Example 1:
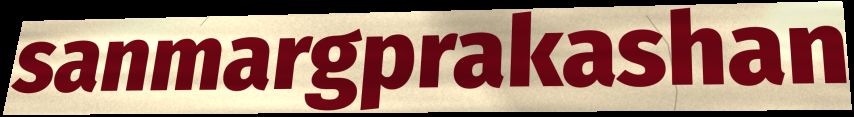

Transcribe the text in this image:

sanmargprakashan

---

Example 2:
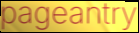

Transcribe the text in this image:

pageantry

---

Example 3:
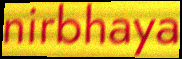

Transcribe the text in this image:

nirbhaya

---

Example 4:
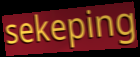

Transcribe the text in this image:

sekeping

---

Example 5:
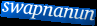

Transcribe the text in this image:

swapnanun